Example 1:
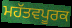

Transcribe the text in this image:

ਮਹੱਤਵਪੂਰਕ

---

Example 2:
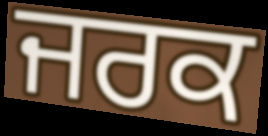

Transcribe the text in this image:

ਜਰਕ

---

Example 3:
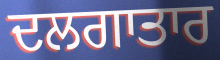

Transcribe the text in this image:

ਦਲਗਾਤਾਰ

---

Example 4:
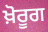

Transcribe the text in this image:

ਖ਼ੋਰੂਗ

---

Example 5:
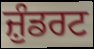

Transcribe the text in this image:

ਜ਼ੁੰਡਰਟ